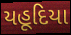
યહૂદિયા